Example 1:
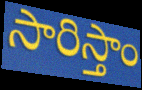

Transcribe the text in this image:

సారిస్తాం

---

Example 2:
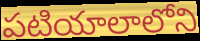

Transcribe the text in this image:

పటియాలాలోని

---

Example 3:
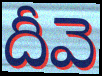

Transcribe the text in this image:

దీవె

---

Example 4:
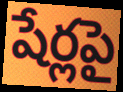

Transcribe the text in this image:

షేర్లపై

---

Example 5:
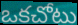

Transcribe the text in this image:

ఒకచోటు